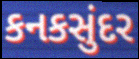
કનકસુંદર